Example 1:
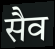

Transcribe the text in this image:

सैव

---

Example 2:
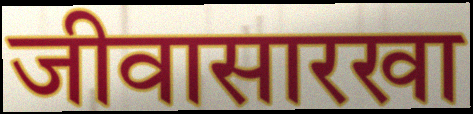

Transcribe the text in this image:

जीवासारखा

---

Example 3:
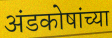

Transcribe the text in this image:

अंडकोषांच्या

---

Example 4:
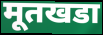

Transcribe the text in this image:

मूतखडा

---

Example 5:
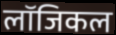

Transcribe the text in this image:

लॉजिकल